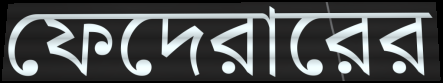
ফেদেরারের